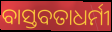
ବାସ୍ତବତାଧର୍ମୀ